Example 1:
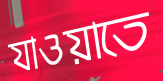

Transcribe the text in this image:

যাওয়াতে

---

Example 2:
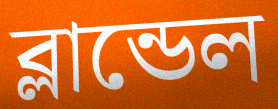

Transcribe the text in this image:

ব্লান্ডেল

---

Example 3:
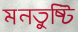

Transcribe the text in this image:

মনতুষ্টি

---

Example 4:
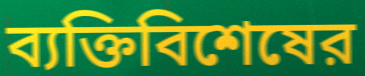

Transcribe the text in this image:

ব্যক্তিবিশেষের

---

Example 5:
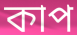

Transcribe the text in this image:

কাপ